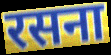
रसना